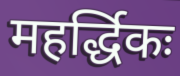
महर्द्धिकः